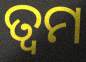
ତ୍ୱମ